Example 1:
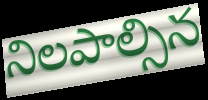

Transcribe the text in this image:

నిలపాల్సిన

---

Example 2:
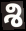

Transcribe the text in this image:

శి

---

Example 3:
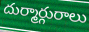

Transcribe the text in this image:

దుర్మార్గురాలు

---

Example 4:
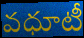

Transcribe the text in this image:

వధూటీ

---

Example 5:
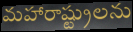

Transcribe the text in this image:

మహారాష్ట్రులను